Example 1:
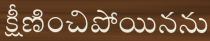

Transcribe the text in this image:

క్షీణించిపోయినను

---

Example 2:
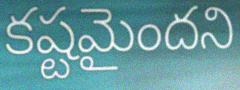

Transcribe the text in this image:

కష్టమైందని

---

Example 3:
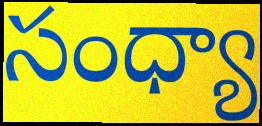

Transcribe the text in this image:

సంధ్యా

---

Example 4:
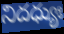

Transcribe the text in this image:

నిదధ్యుః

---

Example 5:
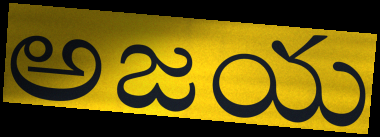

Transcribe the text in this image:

అజయ